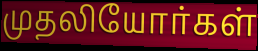
முதலியோர்கள்